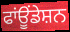
ਫਾਂਊਂਡੇਸ਼ਨ